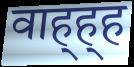
वाह्ह्ह